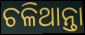
ଚଳିଥାନ୍ତା